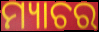
ମ୍ୟାଚର